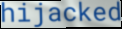
hijacked